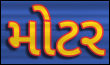
મોટર